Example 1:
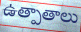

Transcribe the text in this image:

ఉత్పాతాలు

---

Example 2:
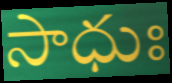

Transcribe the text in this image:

సాధుః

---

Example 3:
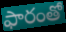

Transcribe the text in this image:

ఫారంతో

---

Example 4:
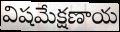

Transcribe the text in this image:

విషమేక్షణాయ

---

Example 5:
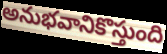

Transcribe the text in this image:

అనుభవానికొస్తుంది